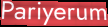
Pariyerum